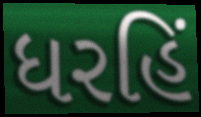
ધરહિં